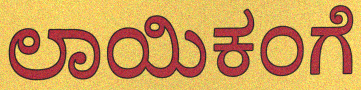
ಲಾಯಿಕಂಗೆ